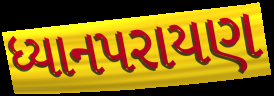
ધ્યાનપરાયણ